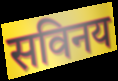
सविनय